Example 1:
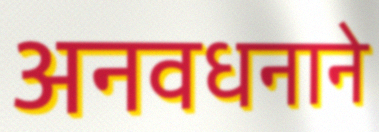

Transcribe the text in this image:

अनवधनाने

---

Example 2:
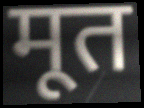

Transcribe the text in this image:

मूत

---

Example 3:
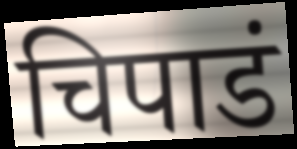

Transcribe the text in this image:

चिपाडं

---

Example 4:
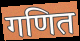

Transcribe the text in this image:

गणित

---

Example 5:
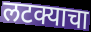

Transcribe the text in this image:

लटक्याचा